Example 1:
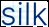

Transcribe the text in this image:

silk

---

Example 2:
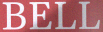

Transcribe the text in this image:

BELL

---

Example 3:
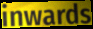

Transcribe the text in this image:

inwards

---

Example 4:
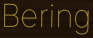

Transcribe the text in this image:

Bering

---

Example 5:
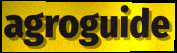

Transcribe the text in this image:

agroguide